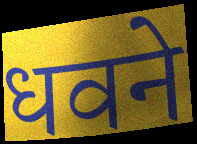
धवने